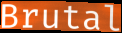
Brutal